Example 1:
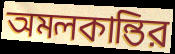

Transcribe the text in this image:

অমলকান্তির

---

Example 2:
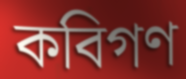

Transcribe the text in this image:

কবিগণ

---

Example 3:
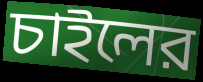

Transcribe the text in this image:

চাইলের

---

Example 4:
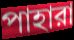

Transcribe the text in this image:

পাহারা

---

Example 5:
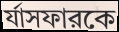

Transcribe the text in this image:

র্যাসফারকে